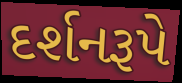
દર્શનરૂપે